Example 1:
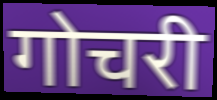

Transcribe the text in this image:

गोचरी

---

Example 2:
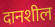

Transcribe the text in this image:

दानशील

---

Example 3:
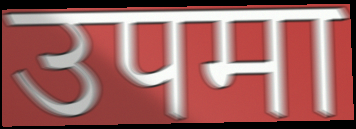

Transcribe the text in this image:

उपमा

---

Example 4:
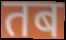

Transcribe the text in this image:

तब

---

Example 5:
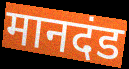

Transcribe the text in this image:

मानदंड